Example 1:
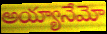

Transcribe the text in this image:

అయ్యానేమో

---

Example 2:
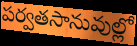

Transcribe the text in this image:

పర్వతసానువుల్లో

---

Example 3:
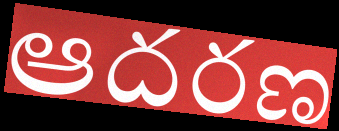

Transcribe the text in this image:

ఆదరణ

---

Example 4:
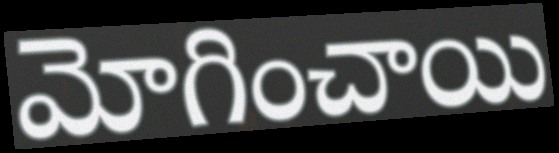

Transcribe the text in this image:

మోగించాయి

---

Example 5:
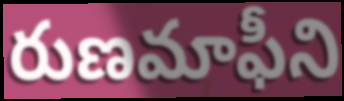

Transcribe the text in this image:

రుణమాఫీని